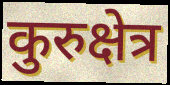
कुरुक्षेत्र